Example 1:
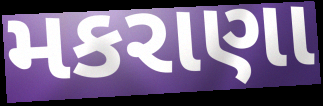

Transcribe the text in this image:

મકરાણા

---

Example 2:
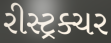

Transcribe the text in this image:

રીસ્ટ્રક્ચર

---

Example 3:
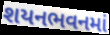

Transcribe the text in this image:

શયનભવનમાં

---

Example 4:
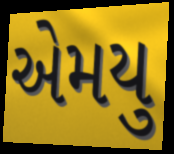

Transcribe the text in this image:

એમયુ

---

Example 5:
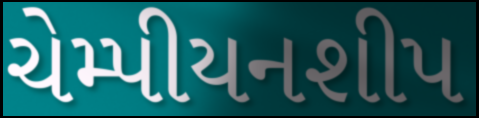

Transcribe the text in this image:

ચેમ્પીયનશીપ